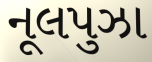
નૂલપુઝા